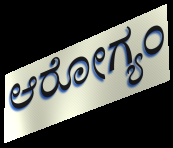
ಆರೋಗ್ಯಂ